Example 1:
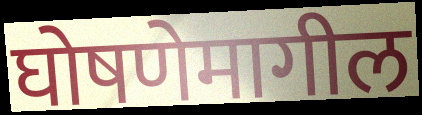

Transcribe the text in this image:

घोषणेमागील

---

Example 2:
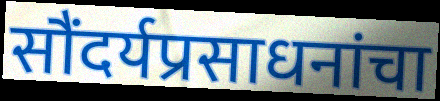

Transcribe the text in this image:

सौंदर्यप्रसाधनांचा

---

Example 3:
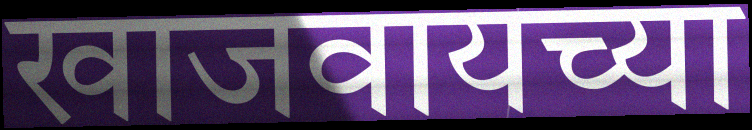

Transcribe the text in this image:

खाजवायच्या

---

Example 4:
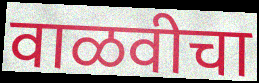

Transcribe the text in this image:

वाळवीचा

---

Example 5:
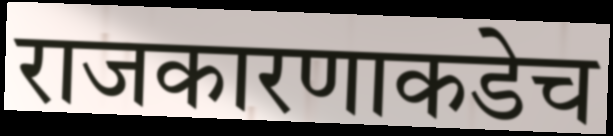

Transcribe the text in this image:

राजकारणाकडेच